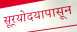
सूर्योदयापासून